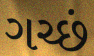
ગચ્છં